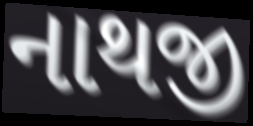
નાથજી